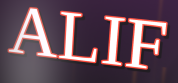
ALIF